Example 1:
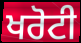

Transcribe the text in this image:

ਖਰੋਟੀ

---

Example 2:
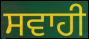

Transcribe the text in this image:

ਸਵਾਹੀ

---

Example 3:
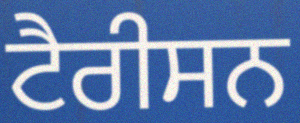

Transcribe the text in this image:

ਟੈਰੀਸਨ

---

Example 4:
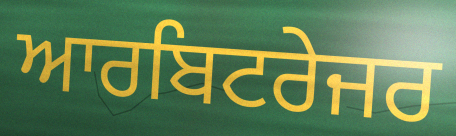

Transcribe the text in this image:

ਆਰਬਿਟਰੇਜਰ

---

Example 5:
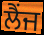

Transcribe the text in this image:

ਲੈਂਜ